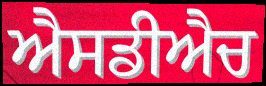
ਐਸਡੀਐਚ